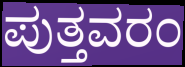
ಪುತ್ತವರಂ